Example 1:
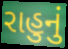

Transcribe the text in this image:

રાહુનું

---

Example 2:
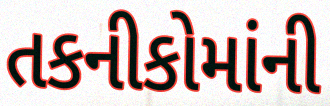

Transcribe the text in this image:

તકનીકોમાંની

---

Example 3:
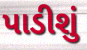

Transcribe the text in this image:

પાડીશું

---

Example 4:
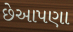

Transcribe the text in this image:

છેઆપણા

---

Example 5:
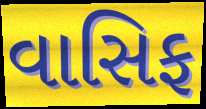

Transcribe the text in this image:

વાસિફ